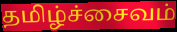
தமிழ்ச்சைவம்